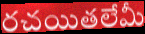
రచయితలేమీ